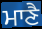
ਮਾਣੈ